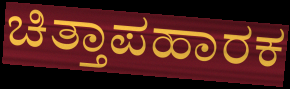
ಚಿತ್ತಾಪಹಾರಕ